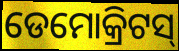
ଡେମୋକ୍ରିଟସ୍